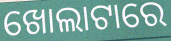
ଖୋଲାଟାରେ